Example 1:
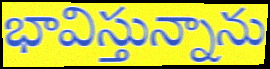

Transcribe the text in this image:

భావిస్తున్నాను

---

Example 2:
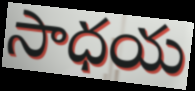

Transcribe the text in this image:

సాధయ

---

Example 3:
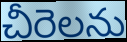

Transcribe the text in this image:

చీరెలను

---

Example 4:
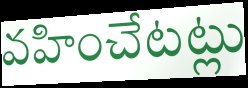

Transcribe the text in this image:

వహించేటట్లు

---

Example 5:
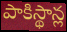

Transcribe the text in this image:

పాకిస్థాన్ల